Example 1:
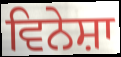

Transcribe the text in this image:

ਵਿਨੇਸ਼ਾ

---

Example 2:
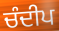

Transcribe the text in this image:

ਚੰਦੀਪ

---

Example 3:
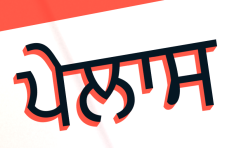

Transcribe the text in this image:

ਪੇਲਾਸ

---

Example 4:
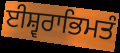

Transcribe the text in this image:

ਈਸ਼੍ਵਰਾਭਿਮਤੰ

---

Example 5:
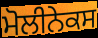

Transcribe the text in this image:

ਮੋਲੀਨੇਕਸ